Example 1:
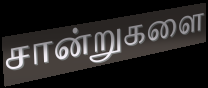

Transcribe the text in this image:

சான்றுகளை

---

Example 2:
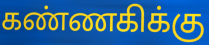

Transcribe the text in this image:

கண்ணகிக்கு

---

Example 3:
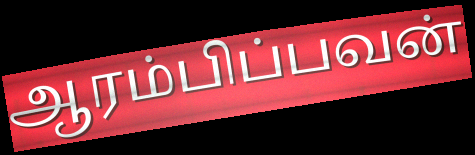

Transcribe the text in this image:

ஆரம்பிப்பவன்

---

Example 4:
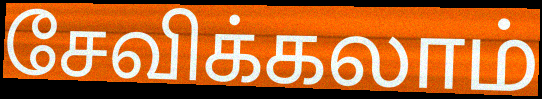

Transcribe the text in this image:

சேவிக்கலாம்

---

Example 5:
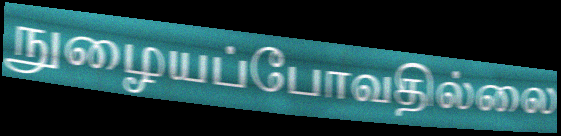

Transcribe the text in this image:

நுழையப்போவதில்லை